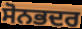
ਸੋਨਭਦਰ